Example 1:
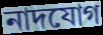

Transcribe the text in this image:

নাদযোগ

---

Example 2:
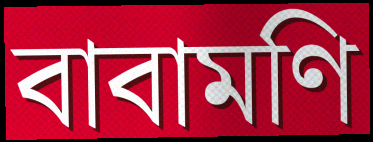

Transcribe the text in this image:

বাবামণি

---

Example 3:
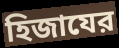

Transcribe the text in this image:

হিজাযের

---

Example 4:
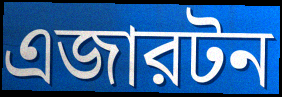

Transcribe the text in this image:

এজারটন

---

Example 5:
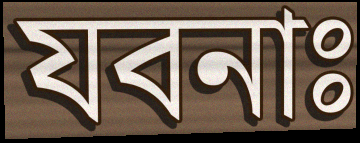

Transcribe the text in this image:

যবনাঃ